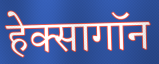
हेक्सागॉन